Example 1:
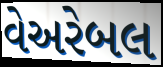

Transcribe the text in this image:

વેઅરેબલ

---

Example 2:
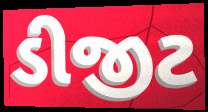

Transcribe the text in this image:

ડીજીટ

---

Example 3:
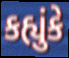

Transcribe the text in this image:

કહ્યુંકે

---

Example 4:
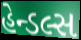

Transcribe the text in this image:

હેન્ડલ્સ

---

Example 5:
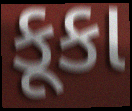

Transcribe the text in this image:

કૂકા